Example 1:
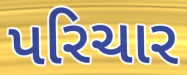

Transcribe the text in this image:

પરિચાર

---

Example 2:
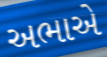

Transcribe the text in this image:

અભાએ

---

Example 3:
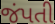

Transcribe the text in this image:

જંપતી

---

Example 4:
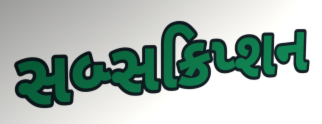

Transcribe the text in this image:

સબ્સક્રિપ્શન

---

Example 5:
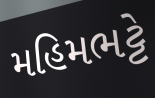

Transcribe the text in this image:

મહિમભટ્ટે